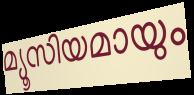
മ്യൂസിയമായും